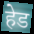
हेड